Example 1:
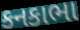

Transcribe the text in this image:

કનકાભા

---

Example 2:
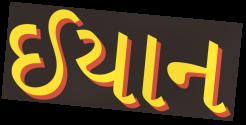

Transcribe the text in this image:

ઈયાન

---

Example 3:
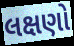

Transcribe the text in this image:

લક્ષણો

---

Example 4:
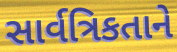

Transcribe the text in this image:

સાર્વત્રિકતાને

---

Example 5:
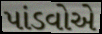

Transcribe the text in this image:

પાંડવોએ